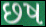
છષ